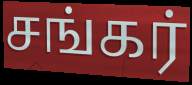
சங்கர்